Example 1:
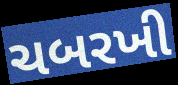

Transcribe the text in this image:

ચબરખી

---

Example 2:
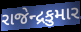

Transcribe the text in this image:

રાજેન્દ્રકુમાર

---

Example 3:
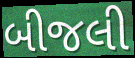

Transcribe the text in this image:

બીજલી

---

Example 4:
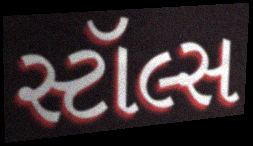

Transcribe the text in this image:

સ્ટૉલ્સ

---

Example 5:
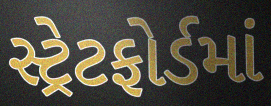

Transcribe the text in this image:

સ્ટ્રેટફોર્ડમાં